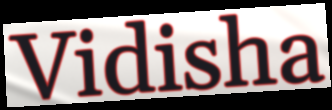
Vidisha